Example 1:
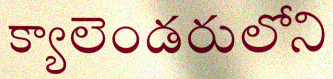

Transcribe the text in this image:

క్యాలెండరులోని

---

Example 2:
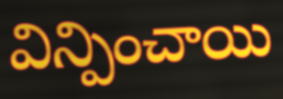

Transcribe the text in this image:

విన్పించాయి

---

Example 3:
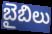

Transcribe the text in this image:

బైబిలు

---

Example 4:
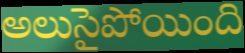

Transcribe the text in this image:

అలుసైపోయింది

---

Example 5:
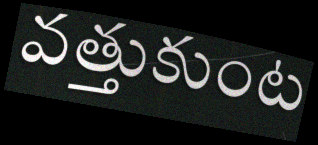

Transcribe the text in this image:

వత్తుకుంట